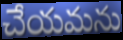
చేయమను